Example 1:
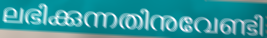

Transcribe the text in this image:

ലഭിക്കുന്നതിനുവേണ്ടി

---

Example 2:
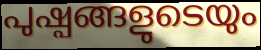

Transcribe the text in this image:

പുഷ്പങ്ങളുടെയും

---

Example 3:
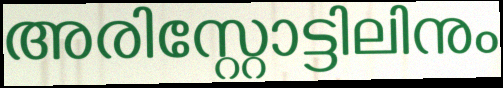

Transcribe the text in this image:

അരിസ്റ്റോട്ടിലിനും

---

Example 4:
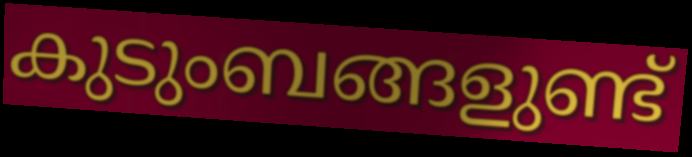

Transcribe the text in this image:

കുടുംബങ്ങളുണ്ട്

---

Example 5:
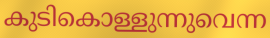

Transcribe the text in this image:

കുടികൊള്ളുന്നുവെന്ന